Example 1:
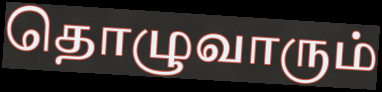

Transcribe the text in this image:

தொழுவாரும்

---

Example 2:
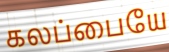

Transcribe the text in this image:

கலப்பையே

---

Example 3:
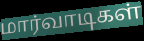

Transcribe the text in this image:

மார்வாடிகள்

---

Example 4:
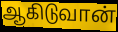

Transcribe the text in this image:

ஆகிடுவான்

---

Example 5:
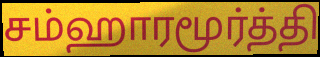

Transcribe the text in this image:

சம்ஹாரமூர்த்தி